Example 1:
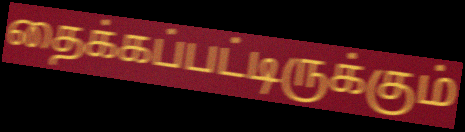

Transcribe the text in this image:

தைக்கப்பட்டிருக்கும்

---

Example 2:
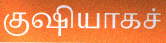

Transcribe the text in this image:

குஷியாகச்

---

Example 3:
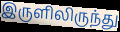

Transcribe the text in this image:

இருளிலிருந்து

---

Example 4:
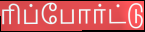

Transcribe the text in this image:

ரிப்போர்ட்டு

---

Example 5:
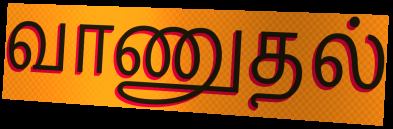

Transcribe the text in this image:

வாணுதல்